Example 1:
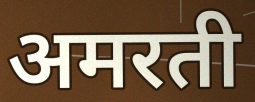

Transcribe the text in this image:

अमरती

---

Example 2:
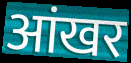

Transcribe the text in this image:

आंखर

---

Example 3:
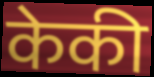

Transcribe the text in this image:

केकी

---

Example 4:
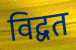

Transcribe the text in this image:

विद्वत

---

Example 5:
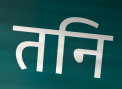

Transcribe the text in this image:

तनि